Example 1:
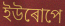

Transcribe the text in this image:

ইউৰোপে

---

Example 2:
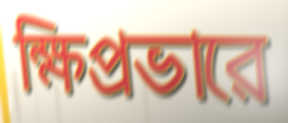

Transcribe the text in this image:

ক্ষিপ্ৰভাৱে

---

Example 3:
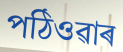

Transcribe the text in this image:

পঠিওৱাৰ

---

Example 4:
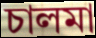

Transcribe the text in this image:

চালমা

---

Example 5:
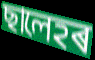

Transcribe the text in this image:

ছালেহৰ